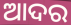
ଆଦର